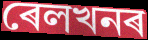
ৰেলখনৰ